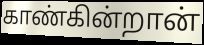
காண்கின்றான்